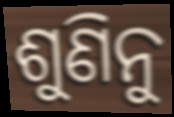
ଶୁଣିନୁ